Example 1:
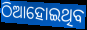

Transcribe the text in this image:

ଠିଆହୋଇଥିବ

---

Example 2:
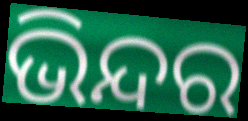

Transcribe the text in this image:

ଭିନ୍ଦର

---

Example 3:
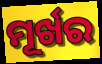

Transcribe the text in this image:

ମୂର୍ଖର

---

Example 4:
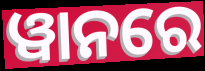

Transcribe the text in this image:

ୱାନରେ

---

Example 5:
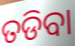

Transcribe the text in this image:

ତଡିବା